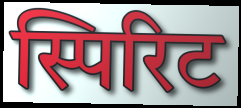
स्पिरिट